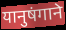
यानुषंगाने